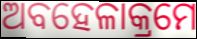
ଅବହେଳାକ୍ରମେ